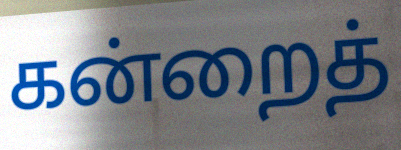
கன்றைத்